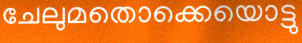
ചേലുമതൊക്കെയൊട്ടു